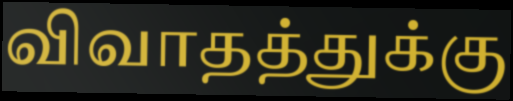
விவாதத்துக்கு